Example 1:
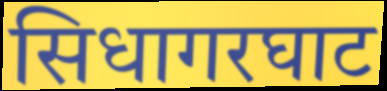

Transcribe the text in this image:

सिधागरघाट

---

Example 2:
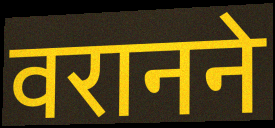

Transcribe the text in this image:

वरानने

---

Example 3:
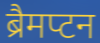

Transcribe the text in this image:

ब्रैमप्टन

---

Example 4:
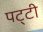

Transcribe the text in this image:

पट्‌टी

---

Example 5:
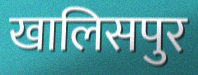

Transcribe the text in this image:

खालिसपुर